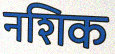
नशिक